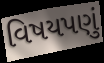
વિષયપણું